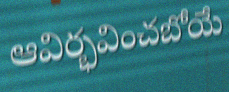
ఆవిర్భవించబోయే